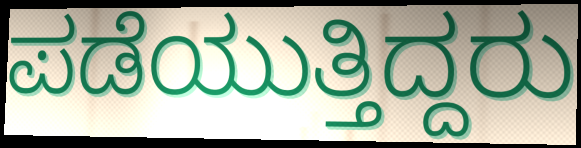
ಪಡೆಯುತ್ತಿದ್ದರು